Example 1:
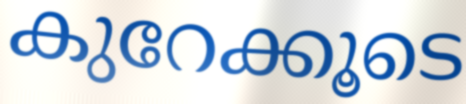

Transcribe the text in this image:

കുറേക്കൂടെ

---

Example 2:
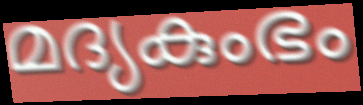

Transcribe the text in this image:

മദ്യകുംഭം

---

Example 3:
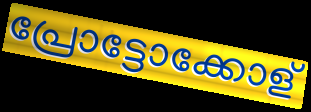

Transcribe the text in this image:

പ്രോട്ടോക്കോള്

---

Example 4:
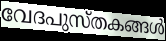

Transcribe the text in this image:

വേദപുസ്തകങ്ങൾ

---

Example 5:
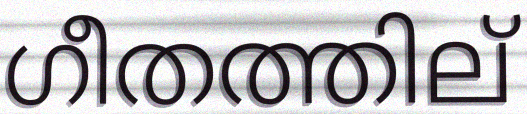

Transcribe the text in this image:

ഗീതത്തില്